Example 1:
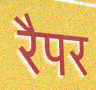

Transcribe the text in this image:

रैपर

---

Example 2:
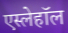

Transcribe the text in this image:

एस्लेहॉल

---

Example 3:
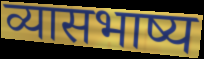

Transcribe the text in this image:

व्यासभाष्य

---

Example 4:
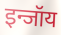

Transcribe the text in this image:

इन्जॉय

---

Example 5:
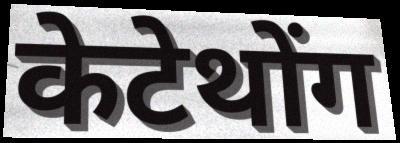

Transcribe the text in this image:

केटेथोंग